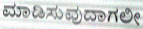
ಮಾಡಿಸುವುದಾಗಲೀ